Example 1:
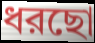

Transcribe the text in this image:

ধরছো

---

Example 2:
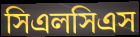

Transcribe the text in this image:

সিএলসিএস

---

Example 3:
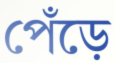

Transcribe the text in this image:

পেঁড়ে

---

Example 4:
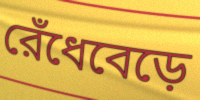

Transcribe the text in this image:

রেঁধেবেড়ে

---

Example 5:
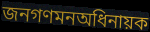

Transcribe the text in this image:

জনগণমনঅধিনায়ক